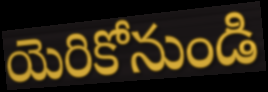
యెరికోనుండి